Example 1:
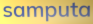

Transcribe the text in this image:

samputa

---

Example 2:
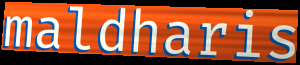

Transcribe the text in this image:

maldharis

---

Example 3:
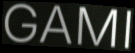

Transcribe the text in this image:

GAMI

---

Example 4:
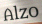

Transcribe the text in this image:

Alzo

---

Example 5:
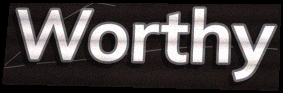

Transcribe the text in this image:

Worthy